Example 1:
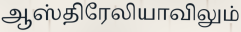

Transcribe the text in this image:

ஆஸ்திரேலியாவிலும்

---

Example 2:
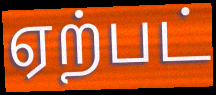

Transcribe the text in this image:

ஏற்பட்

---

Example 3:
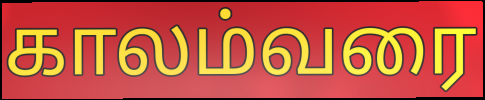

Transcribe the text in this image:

காலம்வரை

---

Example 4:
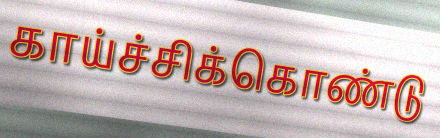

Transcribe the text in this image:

காய்ச்சிக்கொண்டு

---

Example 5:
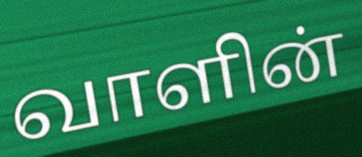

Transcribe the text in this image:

வாளின்